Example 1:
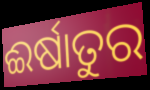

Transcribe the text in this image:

ଈର୍ଷାତୁର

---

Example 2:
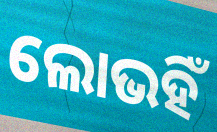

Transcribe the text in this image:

ଲୋଭହିଁ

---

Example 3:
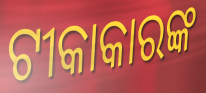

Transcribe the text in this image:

ଟୀକାକାରଙ୍କ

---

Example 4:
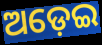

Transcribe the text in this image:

ଅଡ଼େଇ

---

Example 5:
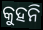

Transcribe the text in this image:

କୁହନି